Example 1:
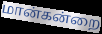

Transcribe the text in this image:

மான்கன்றை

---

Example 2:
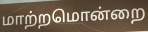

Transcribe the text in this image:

மாற்றமொன்றை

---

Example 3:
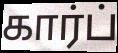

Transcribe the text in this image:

கார்ப்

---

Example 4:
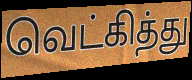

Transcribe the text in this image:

வெட்கித்து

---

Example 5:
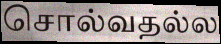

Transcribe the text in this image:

சொல்வதல்ல